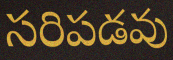
సరిపడవు